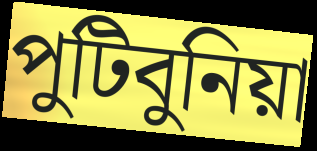
পুটিবুনিয়া